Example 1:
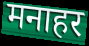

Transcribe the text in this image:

मनाहर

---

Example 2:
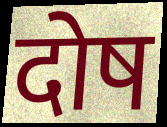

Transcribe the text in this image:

दोष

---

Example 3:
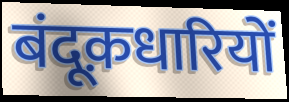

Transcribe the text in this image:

बंदूक़धारियों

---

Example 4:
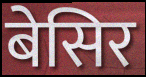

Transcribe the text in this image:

बेसिर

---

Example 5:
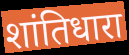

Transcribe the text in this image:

शांतिधारा